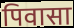
पिवासा